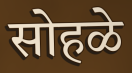
सोहळे